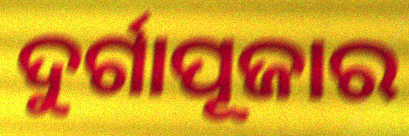
ଦୁର୍ଗାପୂଜାର